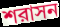
শরাসন